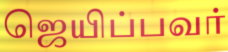
ஜெயிப்பவர்